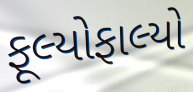
ફૂલ્યોફાલ્યો